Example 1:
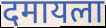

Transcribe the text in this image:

दमायला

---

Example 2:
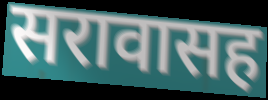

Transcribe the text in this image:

सरावासह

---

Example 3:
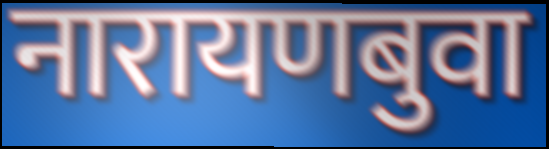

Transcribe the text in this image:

नारायणबुवा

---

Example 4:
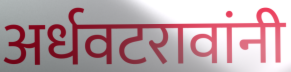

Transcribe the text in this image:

अर्धवटरावांनी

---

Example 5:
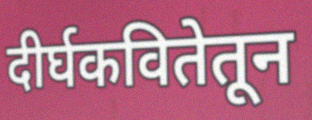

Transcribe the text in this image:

दीर्घकवितेतून